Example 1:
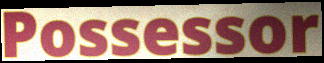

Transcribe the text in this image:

Possessor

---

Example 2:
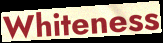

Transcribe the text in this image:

Whiteness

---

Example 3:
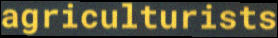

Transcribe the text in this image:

agriculturists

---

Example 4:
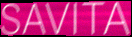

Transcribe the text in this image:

SAVITA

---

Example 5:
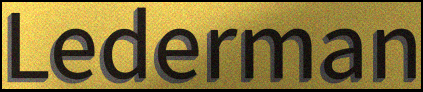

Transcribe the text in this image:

Lederman